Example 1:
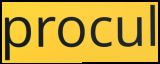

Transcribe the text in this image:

procul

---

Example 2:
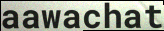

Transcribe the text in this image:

aawachat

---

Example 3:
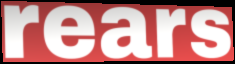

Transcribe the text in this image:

rears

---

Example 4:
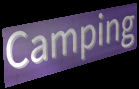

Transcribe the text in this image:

Camping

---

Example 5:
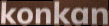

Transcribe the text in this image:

konkan